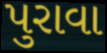
પુરાવા